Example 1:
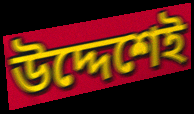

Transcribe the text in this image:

উদ্দেশেই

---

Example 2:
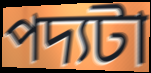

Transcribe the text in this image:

পদ্যটা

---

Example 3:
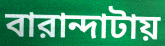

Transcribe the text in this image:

বারান্দাটায়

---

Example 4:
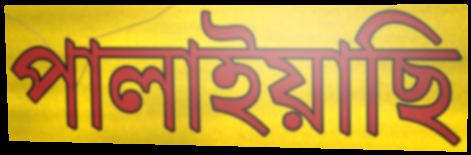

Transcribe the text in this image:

পালাইয়াছি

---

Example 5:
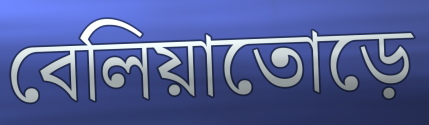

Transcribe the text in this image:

বেলিয়াতোড়ে